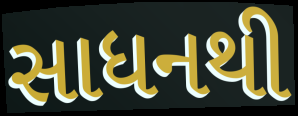
સાધનથી